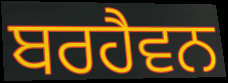
ਬਰਹੈਵਨ